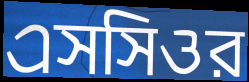
এসসিওর